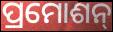
ପ୍ରମୋଶନ୍